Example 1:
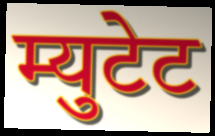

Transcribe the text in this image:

म्युटेट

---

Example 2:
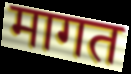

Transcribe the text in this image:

मागत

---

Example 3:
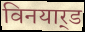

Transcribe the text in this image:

विनयार्ड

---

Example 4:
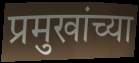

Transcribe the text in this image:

प्रमुखांच्या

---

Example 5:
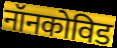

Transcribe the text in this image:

नॉनकोविड